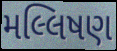
મલ્લિષણ